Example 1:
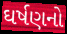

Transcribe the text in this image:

ઘર્ષણનો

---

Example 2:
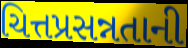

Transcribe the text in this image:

ચિત્તપ્રસન્નતાની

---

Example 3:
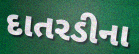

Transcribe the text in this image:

દાતરડીના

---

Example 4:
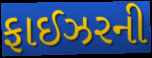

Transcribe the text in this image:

ફાઈઝરની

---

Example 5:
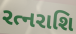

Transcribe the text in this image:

રત્નરાશિ